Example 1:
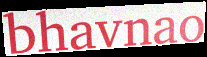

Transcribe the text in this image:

bhavnao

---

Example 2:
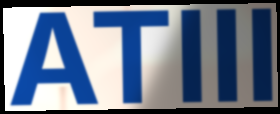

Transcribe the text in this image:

ATIII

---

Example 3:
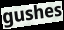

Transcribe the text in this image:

gushes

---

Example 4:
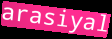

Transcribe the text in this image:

arasiyal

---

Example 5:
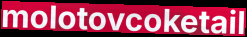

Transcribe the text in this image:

molotovcoketail